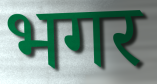
भगर